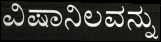
ವಿಷಾನಿಲವನ್ನು